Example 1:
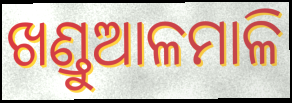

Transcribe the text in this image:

ଖଣ୍ଡୁଆଳମାଳି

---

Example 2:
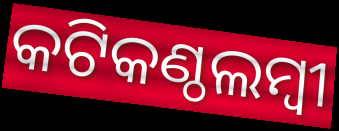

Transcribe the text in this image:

କଟିକଣ୍ଠଲମ୍ବୀ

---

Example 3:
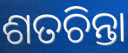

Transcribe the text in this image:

ଶତଚିନ୍ତା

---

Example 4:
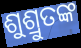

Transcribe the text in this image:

ଶୁଶ୍ରୁତଙ୍କ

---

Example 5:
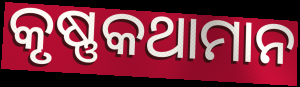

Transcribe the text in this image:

କୃଷ୍ଣକଥାମାନ